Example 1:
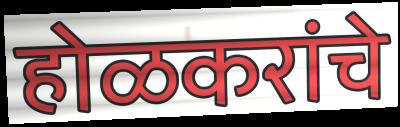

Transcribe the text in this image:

होळकरांचे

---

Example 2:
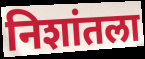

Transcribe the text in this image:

निशांतला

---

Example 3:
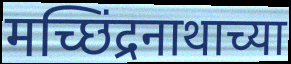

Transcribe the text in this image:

मच्छिंद्रनाथाच्या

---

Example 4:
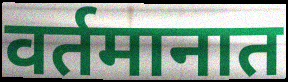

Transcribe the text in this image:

वर्तमानात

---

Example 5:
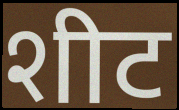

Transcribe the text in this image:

शीट